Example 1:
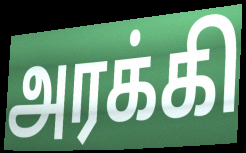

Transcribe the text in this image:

அரக்கி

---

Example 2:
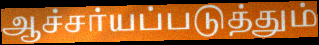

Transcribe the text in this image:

ஆச்சர்யப்படுத்தும்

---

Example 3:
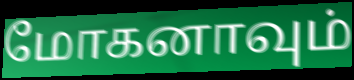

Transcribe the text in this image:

மோகனாவும்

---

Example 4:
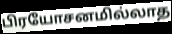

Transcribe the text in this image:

பிரயோசனமில்லாத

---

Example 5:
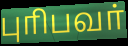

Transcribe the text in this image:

புரிபவர்